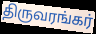
திருவரங்கர்